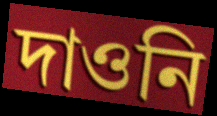
দাওনি